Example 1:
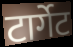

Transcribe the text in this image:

टार्गेट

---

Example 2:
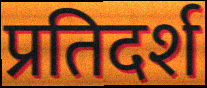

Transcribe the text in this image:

प्रतिदर्श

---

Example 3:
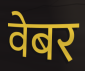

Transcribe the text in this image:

वेबर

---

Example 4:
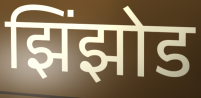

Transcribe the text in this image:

झिंझोड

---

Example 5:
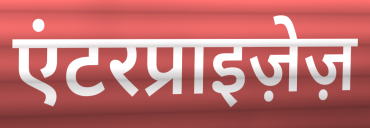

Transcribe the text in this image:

एंटरप्राइज़ेज़